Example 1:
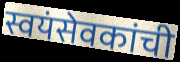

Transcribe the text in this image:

स्वयंसेवकांची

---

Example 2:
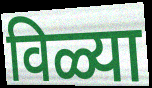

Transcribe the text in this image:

विळ्या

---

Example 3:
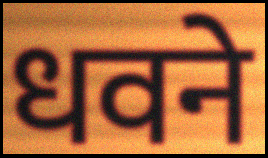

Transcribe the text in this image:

धवने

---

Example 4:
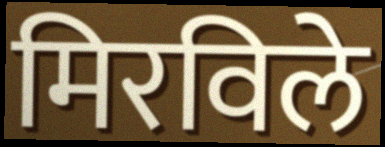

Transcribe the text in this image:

मिरविले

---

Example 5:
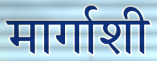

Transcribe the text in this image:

मार्गाशी